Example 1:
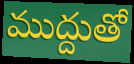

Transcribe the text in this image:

ముద్దుతో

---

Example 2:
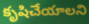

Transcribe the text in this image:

కృషిచేయాలని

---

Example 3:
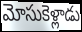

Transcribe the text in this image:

మోసుకెళ్లాడు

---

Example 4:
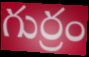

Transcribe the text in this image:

గుర్రం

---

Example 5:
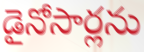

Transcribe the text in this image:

డైనోసార్లను